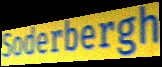
Soderbergh